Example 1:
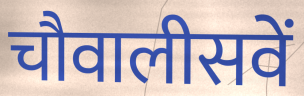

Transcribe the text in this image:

चौवालीसवें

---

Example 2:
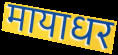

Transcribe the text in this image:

मायाधर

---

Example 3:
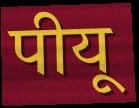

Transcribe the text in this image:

पीयू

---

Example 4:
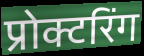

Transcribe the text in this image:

प्रोक्टरिंग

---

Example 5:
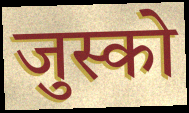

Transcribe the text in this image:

जुस्को